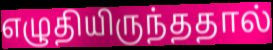
எழுதியிருந்ததால்